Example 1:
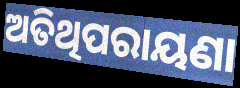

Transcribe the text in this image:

ଅତିଥିପରାୟଣା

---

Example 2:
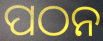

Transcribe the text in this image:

ପଠନ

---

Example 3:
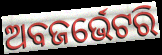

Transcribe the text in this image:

ଅବଜର୍ଭେଟରି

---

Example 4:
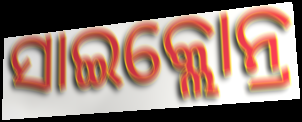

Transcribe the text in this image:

ସାଇକ୍ଲୋନ୍ର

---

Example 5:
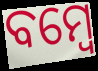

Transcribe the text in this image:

ବମ୍ୱେ